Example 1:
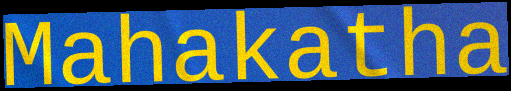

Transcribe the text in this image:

Mahakatha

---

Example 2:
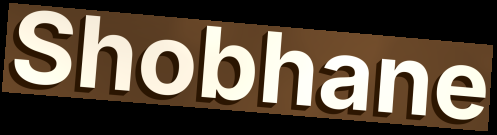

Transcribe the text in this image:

Shobhane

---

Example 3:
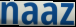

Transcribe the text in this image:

naaz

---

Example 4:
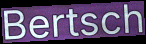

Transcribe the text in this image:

Bertsch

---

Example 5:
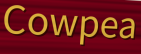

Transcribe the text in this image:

Cowpea